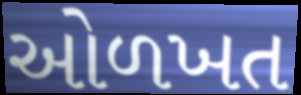
ઓળખત